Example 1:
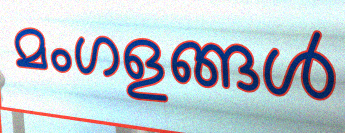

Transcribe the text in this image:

മംഗളങ്ങൾ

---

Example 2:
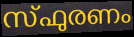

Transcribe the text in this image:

സ്ഫുരണം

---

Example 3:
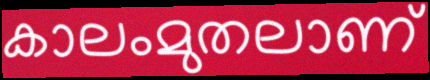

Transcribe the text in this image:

കാലംമുതലാണ്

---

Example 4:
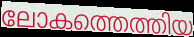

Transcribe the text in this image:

ലോകത്തെത്തിയ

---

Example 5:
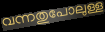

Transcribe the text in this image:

വന്നതുപോലുള്ള